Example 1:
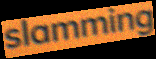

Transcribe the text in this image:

slamming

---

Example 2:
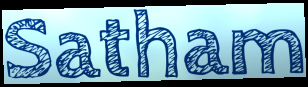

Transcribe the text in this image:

Satham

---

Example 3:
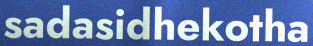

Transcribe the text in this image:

sadasidhekotha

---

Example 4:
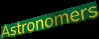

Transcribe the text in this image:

Astronomers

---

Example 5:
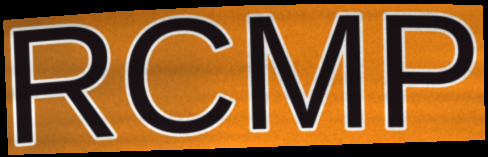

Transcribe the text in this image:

RCMP